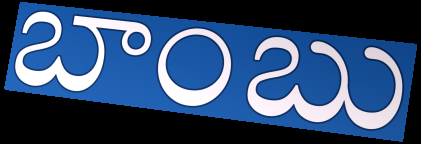
బాంబు